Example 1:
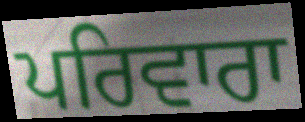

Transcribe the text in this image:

ਪਰਿਵਾਰਾ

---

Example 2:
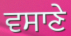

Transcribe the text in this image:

ਵਸਾਣੇ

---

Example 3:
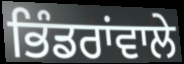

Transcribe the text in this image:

ਭਿੰਡਰਾਂਵਾਲੇ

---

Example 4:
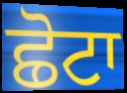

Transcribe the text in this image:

ਛੋਟਾ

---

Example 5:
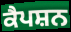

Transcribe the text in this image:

ਕੈਪਸ਼ਨ